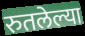
रुतलेल्या